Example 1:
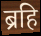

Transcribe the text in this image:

ब्रहि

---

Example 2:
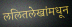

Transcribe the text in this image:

ललितलेखांमधून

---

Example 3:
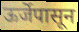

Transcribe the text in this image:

ऊर्जेपासून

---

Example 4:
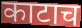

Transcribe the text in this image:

काटाच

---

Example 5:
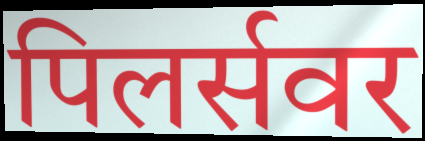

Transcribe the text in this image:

पिलर्सवर